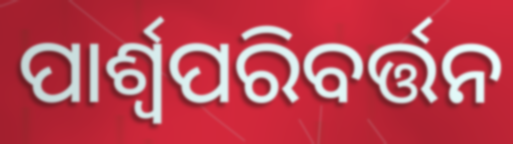
ପାର୍ଶ୍ଵପରିବର୍ତ୍ତନ